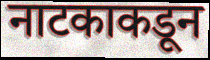
नाटकाकडून